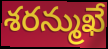
శరన్ముఖే